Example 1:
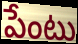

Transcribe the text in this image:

పేంటు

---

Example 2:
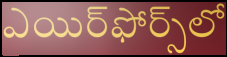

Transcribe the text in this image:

ఎయిర్‌ఫోర్స్‌లో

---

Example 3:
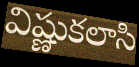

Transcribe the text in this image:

విష్ణుకలాసి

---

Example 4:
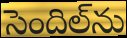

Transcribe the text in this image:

సెందిల్‌ను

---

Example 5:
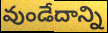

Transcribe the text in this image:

వుండేదాన్ని